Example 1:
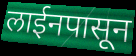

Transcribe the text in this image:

लाईनपासून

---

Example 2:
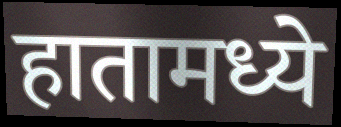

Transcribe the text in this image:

हातामध्ये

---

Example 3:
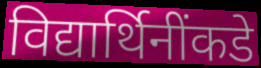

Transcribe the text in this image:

विद्यार्थिनींकडे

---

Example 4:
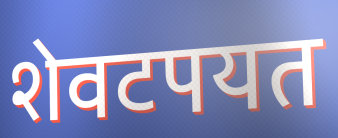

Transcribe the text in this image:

शेवटपयत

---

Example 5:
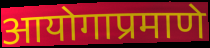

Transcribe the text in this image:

आयोगाप्रमाणे